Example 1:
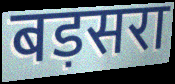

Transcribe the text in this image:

बड़सरा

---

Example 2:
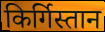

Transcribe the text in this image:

किर्गिस्तान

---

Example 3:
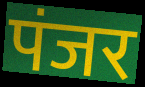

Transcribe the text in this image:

पंजर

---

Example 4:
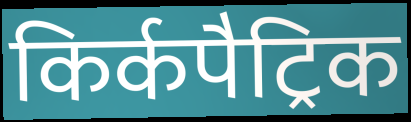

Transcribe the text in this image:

किर्कपैट्रिक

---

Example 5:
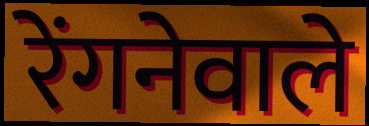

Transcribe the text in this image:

रेंगनेवाले